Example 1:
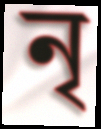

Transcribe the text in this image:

নৃ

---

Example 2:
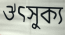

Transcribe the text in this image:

ঔৎসুক্য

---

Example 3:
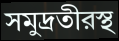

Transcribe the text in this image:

সমুদ্রতীরস্থ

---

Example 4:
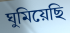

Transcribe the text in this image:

ঘুমিয়েছি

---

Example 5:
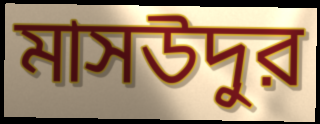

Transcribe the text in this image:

মাসউদুর